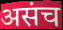
असंच